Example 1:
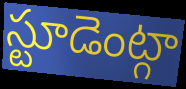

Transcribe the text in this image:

స్టూడెంట్గా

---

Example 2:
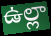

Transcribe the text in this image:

ఉల్లా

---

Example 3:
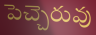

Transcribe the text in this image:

పెచ్చెరువు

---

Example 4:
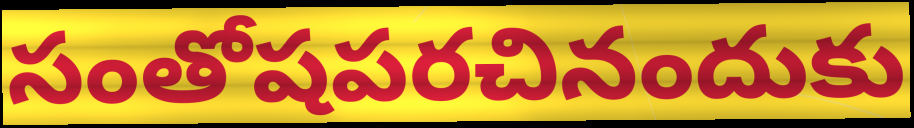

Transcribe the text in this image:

సంతోషపరచినందుకు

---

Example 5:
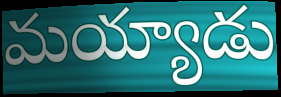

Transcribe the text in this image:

మయ్యాడు